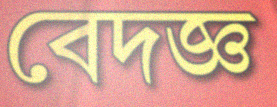
বেদজ্ঞ